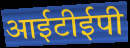
आईटीईपी